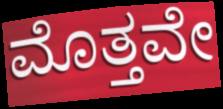
ಮೊತ್ತವೇ